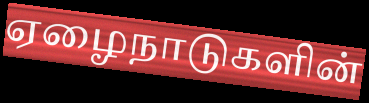
ஏழைநாடுகளின்